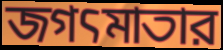
জগৎমাতার